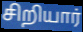
சிறியார்